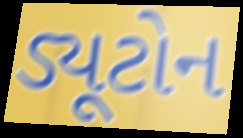
ડ્યૂટોન